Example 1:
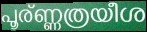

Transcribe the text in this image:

പൂര്ണ്ണത്രയീശ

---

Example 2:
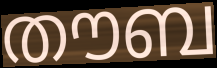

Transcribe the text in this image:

തൗബ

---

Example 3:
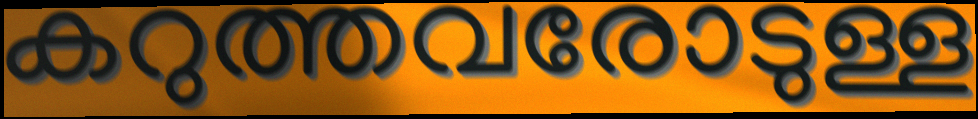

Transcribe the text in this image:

കറുത്തവരോടുള്ള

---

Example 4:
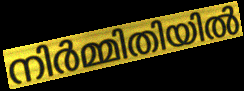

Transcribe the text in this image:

നിർമ്മിതിയിൽ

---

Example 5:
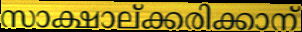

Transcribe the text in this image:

സാക്ഷാല്ക്കരിക്കാന്